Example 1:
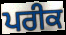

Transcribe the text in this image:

ਪਰੀਕ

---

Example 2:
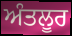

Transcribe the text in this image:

ਅੰਤਲੂਰ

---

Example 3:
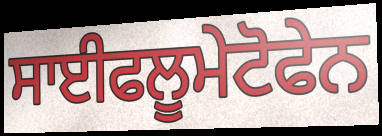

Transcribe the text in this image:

ਸਾਈਫਲੂਮੇਟੋਫੇਨ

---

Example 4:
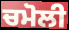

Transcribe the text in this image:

ਚਮੋਲੀ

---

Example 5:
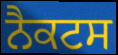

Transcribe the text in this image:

ਨੈਕਟਸ